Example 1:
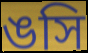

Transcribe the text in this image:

ঙসি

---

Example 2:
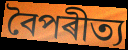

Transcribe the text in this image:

বৈপৰীত্য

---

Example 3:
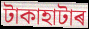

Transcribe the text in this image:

টাকাহাটাৰ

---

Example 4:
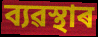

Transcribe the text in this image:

ব্যৱস্থাৰ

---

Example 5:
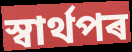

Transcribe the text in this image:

স্বাৰ্থপৰ